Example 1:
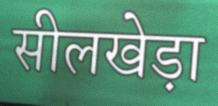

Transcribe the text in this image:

सीलखेड़ा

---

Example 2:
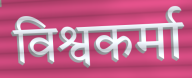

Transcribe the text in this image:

विश्वकर्मा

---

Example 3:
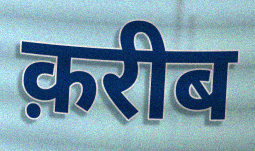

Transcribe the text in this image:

क़रीब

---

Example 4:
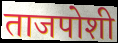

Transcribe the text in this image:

ताजपोशी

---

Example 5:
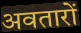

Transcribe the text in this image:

अवतारों